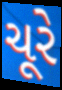
ચૂરે